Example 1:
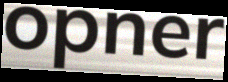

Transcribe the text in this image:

opner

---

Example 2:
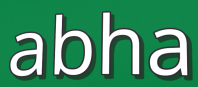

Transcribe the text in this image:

abha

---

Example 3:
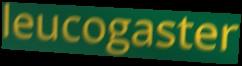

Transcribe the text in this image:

leucogaster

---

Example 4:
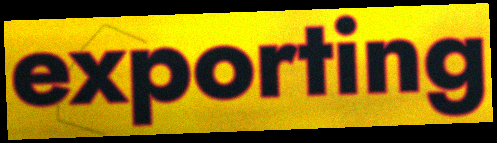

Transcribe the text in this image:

exporting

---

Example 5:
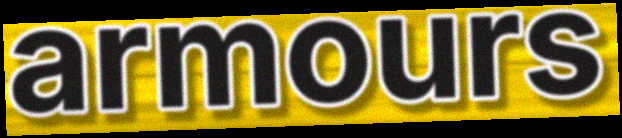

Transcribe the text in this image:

armours